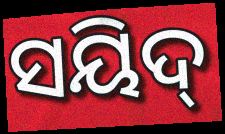
ସୟିଦ୍